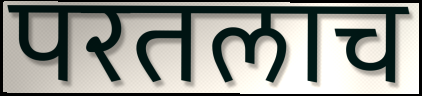
परतलाच